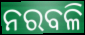
ନରବଳି